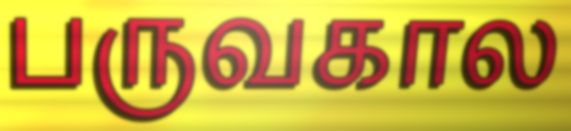
பருவகால